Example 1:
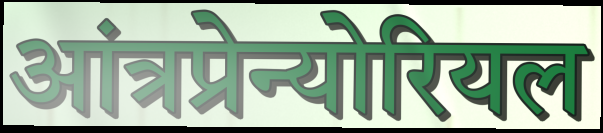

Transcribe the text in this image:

आंत्रप्रेन्योरियल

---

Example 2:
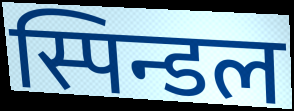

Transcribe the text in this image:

स्पिन्डल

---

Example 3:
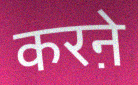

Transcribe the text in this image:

करऩे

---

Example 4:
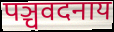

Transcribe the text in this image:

पञ्चवदनाय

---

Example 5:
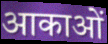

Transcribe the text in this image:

आकाओं